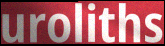
uroliths